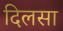
दिलसा